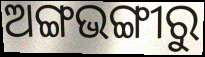
ଅଙ୍ଗଭଙ୍ଗୀରୁ